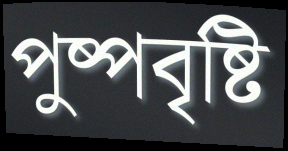
পুষ্পবৃষ্টি